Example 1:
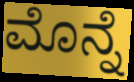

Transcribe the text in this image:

ಮೊನ್ನೆ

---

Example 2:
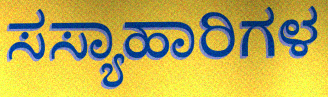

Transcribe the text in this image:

ಸಸ್ಯಾಹಾರಿಗಳ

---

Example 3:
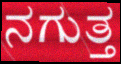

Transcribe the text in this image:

ನಗುತ್ತ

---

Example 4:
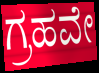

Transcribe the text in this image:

ಗ್ರಹವೇ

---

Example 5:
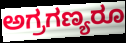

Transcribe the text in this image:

ಅಗ್ರಗಣ್ಯರೂ